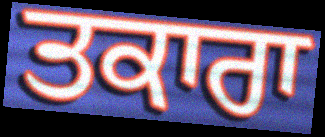
ਤਕਾਰਾ